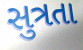
સુત્રતા